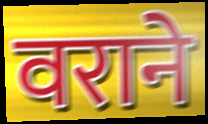
वराने